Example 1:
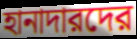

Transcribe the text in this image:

হানাদারদের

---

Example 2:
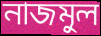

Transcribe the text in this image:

নাজমুল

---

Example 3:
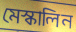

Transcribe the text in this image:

মেস্কালিন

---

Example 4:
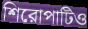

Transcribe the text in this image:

শিরোপাটিও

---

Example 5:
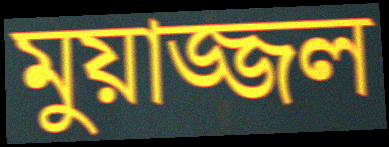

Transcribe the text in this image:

মুয়াজ্জল